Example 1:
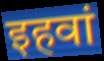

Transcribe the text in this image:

इहवां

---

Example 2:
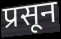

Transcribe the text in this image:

प्रसून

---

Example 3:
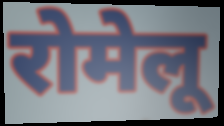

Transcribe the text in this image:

रोमेलू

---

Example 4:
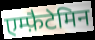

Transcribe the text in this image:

एम्फ़ैटेमिन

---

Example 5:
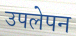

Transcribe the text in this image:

उपलेपन